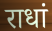
राधां